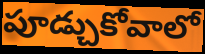
పూడ్చుకోవాలో